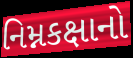
નિમ્નકક્ષાનો